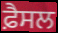
ਫ਼ੈਸਲ